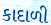
કાદાળી